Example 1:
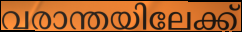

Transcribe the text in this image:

വരാന്തയിലേക്ക്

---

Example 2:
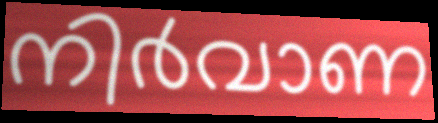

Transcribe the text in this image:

നിർവാണ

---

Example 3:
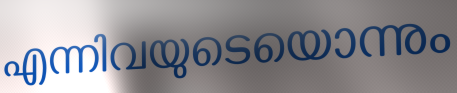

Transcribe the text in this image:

എന്നിവയുടെയൊന്നും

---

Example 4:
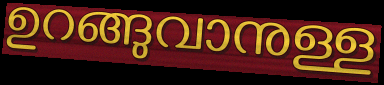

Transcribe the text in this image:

ഉറങ്ങുവാനുള്ള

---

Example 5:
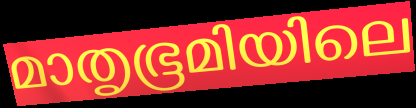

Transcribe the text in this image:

മാതൃഭൂമിയിലെ